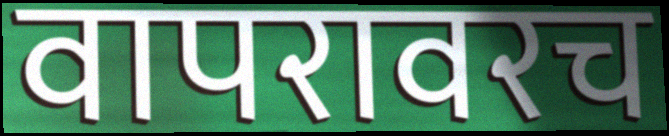
वापरावरच